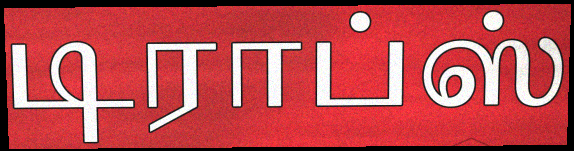
டிராப்ஸ்